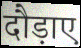
दौड़ाए